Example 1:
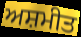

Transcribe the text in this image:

ਅਸ਼ਮੀਤ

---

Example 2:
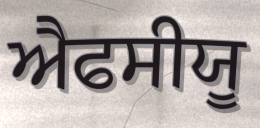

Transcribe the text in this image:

ਐਫਸੀਯੂ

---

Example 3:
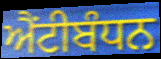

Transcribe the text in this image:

ਐਂਟੀਬੰਧਨ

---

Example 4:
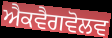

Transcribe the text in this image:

ਐਕਵੈਗਵੋਲਵ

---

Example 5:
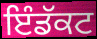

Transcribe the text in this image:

ਇੰਡੱਕਟ